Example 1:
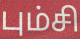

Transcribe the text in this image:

பும்சி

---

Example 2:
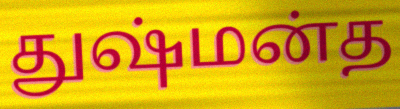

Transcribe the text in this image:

துஷ்மன்த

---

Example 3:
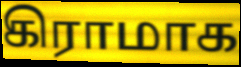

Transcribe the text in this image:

கிராமாக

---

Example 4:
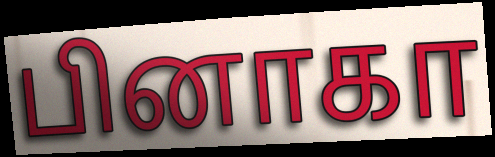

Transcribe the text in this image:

பினாகா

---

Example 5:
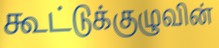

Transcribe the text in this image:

கூட்டுக்குழுவின்